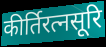
कीर्तिरत्नसूरि